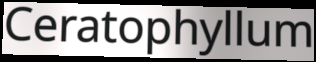
Ceratophyllum